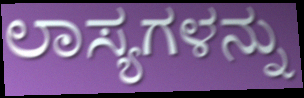
ಲಾಸ್ಯಗಳನ್ನು